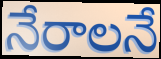
నేరాలనే